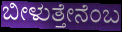
ಬೀಳುತ್ತೇನೆಂಬ